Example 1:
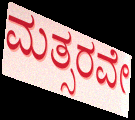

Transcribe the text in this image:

ಮತ್ಸರವೇ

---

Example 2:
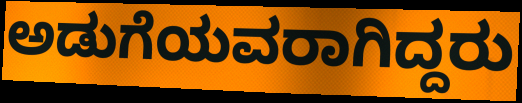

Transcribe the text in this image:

ಅಡುಗೆಯವರಾಗಿದ್ದರು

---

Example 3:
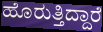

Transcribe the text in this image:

ಹೊರುತ್ತಿದ್ದಾರೆ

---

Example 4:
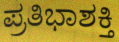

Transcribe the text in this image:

ಪ್ರತಿಭಾಶಕ್ತಿ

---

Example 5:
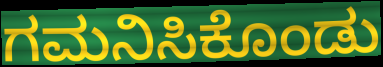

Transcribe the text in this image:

ಗಮನಿಸಿಕೊಂಡು